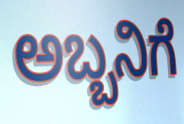
ಅಬ್ಬನಿಗೆ